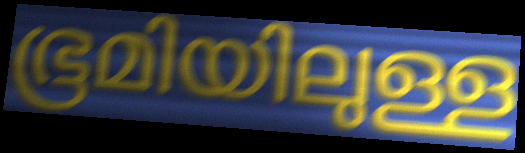
ഭൂമിയിലുള്ള